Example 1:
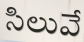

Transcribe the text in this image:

సిలువే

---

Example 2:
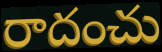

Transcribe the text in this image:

రాదంచు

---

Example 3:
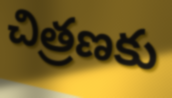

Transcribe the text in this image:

చిత్రణకు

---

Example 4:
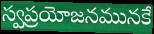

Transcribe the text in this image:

స్వప్రయోజనమునకే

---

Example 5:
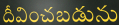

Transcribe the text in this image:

దీవించబడును